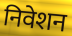
निवेशन